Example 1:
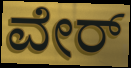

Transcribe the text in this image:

ವೇರ್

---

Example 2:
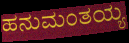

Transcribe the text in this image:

ಹನುಮಂತಯ್ಯ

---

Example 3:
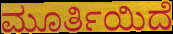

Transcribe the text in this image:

ಮೂರ್ತಿಯಿದೆ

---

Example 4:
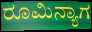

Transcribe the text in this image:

ರೂಮಿನ್ಯಾಗ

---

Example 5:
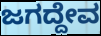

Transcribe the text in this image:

ಜಗದ್ದೇವ